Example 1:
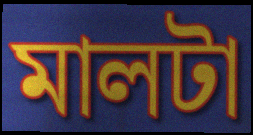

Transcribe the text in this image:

মালটা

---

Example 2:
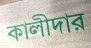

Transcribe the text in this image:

কালীদার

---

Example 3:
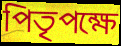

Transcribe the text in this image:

পিতৃপক্ষে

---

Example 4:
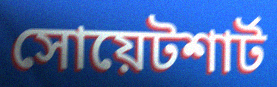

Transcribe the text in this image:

সোয়েটশার্ট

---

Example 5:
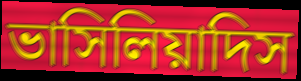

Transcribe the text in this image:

ভাসিলিয়াদিস